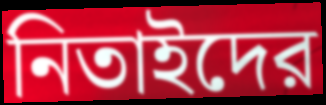
নিতাইদের